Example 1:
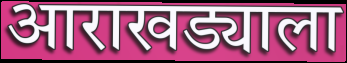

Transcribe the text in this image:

आराखड्याला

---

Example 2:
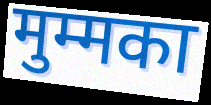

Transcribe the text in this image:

मुम्मका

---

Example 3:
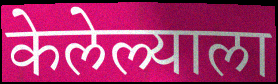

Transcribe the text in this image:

केलेल्याला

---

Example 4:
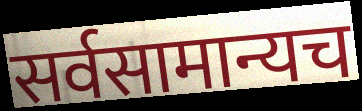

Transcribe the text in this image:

सर्वसामान्यच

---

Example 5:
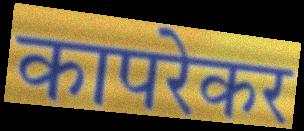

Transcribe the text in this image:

कापरेकर